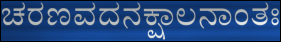
ಚರಣವದನಕ್ಷಾಲನಾಂತಃ